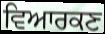
ਵਿਆਰਕਣ